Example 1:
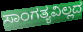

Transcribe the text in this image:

ಸಾಂಗತ್ಯವಿಲ್ಲದ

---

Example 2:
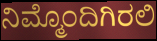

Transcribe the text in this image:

ನಿಮ್ಮೊಂದಿಗಿರಲಿ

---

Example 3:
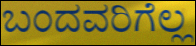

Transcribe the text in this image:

ಬಂದವರಿಗೆಲ್ಲ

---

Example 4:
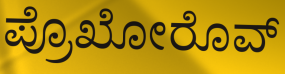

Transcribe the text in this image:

ಪ್ರೊಖೋರೊವ್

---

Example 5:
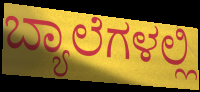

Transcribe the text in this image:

ಬ್ಯಾಲೆಗಳಲ್ಲಿ